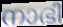
നാഭി